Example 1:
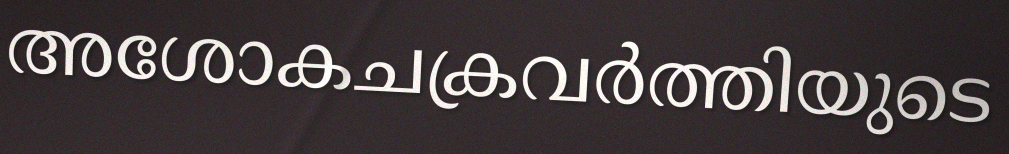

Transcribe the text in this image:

അശോകചക്രവർത്തിയുടെ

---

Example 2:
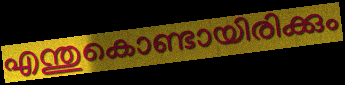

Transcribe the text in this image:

എന്തുകൊണ്ടായിരിക്കും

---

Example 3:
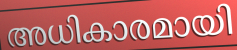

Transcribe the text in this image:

അധികാരമായി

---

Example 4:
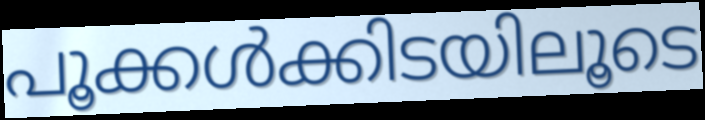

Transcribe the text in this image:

പൂക്കൾക്കിടയിലൂടെ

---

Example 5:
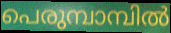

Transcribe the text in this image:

പെരുമ്പാമ്പിൽ